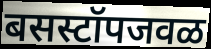
बसस्टॉपजवळ